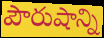
పౌరుషాన్ని